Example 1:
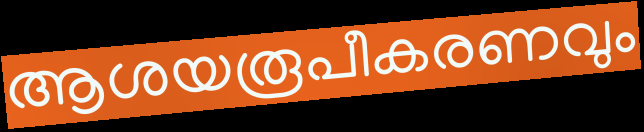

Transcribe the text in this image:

ആശയരൂപീകരണവും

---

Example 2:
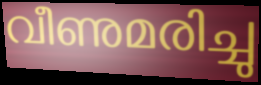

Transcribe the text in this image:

വീണുമരിച്ചു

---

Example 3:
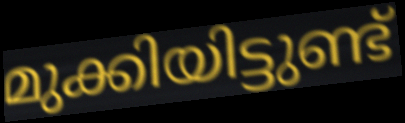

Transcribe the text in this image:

മുക്കിയിട്ടുണ്ട്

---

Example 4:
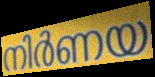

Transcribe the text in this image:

നിർണയ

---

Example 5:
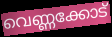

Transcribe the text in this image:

വെണ്ണക്കോട്